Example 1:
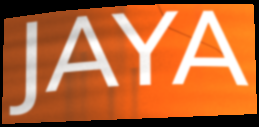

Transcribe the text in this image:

JAYA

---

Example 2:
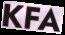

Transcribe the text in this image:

KFA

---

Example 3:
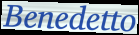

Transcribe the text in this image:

Benedetto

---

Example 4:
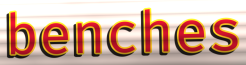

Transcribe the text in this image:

benches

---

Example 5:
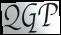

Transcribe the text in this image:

QGP